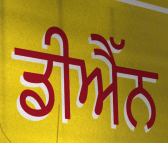
ਡੀਐੱਨ